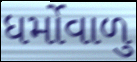
ધર્મોવાળુ